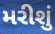
મરીશું